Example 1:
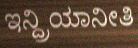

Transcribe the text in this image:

ಇನ್ದ್ರಿಯಾನೀತಿ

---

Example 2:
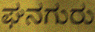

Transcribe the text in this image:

ಘನಗುರು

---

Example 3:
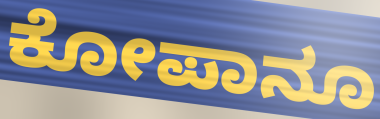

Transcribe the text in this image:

ಕೋಪಾನೂ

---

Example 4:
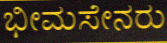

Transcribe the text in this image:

ಭೀಮಸೇನರು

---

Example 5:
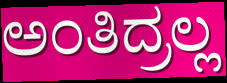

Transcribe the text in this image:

ಅಂತಿದ್ರಲ್ಲ